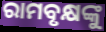
ରାମବୃକ୍ଷଙ୍କୁ